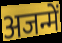
अजन्में